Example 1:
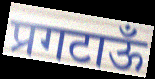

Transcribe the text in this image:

प्रगटाऊँ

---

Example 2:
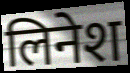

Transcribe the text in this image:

लिनेश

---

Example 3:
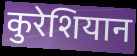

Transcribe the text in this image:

कुरेशियान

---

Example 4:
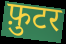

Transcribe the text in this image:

फ़ुटर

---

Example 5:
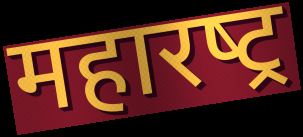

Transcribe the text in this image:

महारष्ट्र